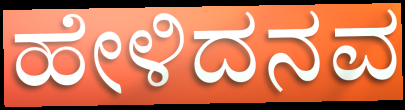
ಹೇಳಿದನವ